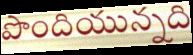
పొందియున్నది